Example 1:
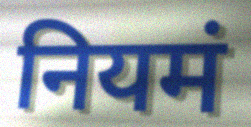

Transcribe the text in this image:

नियमं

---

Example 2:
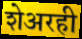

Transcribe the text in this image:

शेअरही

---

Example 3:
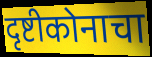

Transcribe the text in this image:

दृष्टीकोनाचा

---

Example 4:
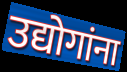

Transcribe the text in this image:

उद्योगांना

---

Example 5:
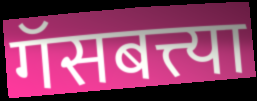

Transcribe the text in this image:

गॅसबत्त्या